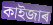
কাইজাৰ